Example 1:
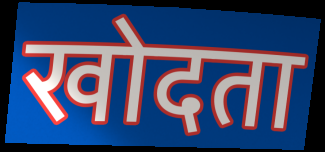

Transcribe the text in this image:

खोदता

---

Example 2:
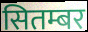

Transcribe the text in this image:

सितम्‍बर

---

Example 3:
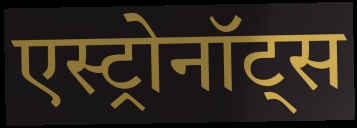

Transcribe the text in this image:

एस्ट्रोनॉट्स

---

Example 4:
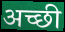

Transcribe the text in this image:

अच्छी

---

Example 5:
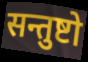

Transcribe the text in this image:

सन्तुष्टो